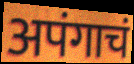
अपंगाचं